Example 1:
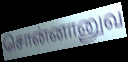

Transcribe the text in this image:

சொன்னானுவ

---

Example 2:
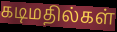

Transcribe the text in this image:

கடிமதில்கள்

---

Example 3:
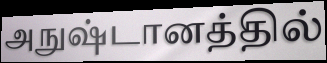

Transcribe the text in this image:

அநுஷ்டானத்தில்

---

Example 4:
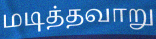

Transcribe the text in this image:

மடித்தவாறு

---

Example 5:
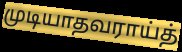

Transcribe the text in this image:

முடியாதவராய்த்